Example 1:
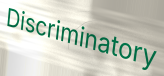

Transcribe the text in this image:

Discriminatory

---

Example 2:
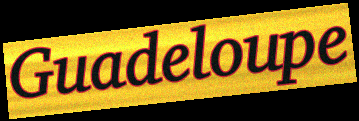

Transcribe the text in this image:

Guadeloupe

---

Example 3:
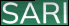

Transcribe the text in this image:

SARI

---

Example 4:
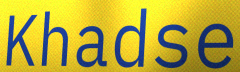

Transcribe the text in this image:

Khadse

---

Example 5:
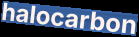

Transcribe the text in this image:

halocarbon